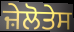
ਜ਼ੇਲੋਤੇਸ